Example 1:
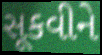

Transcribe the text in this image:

સૂકવીને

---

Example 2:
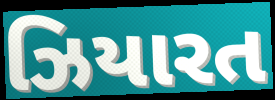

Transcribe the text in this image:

ઝિયારત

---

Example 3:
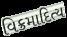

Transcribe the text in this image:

વિક્રમાદિત્‍ય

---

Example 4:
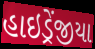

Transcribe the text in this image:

હાઇડ્રેંજીયા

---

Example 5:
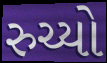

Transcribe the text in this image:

રુચ્યો